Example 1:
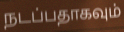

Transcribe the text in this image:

நடப்பதாகவும்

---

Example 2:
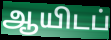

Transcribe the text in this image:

ஆயிடப்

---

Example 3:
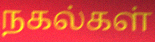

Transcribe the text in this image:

நகல்கள்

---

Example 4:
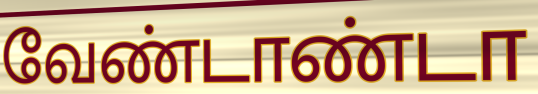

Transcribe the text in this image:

வேண்டாண்டா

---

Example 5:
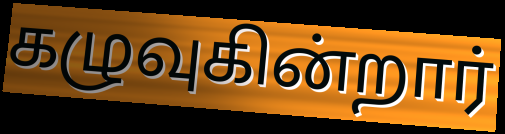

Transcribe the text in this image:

கழுவுகின்றார்